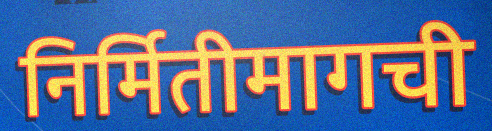
निर्मितीमागची